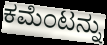
ಕಮೆಂಟನ್ನು